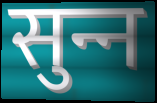
सुन्‍न